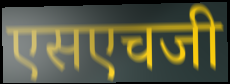
एसएचजी